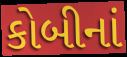
કોબીનાં